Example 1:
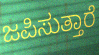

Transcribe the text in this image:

ಜಪಿಸುತ್ತಾರೆ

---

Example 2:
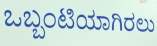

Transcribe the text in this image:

ಒಬ್ಬಂಟಿಯಾಗಿರಲು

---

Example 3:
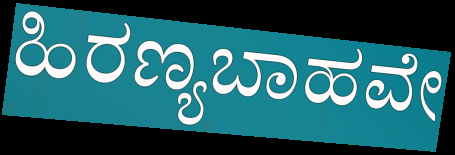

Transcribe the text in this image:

ಹಿರಣ್ಯಬಾಹವೇ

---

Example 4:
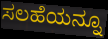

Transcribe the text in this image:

ಸಲಹೆಯನ್ನೂ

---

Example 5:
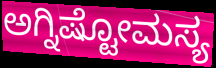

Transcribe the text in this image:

ಅಗ್ನಿಷ್ಟೋಮಸ್ಯ